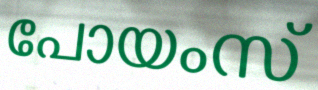
പോയംസ്